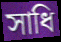
সাধি